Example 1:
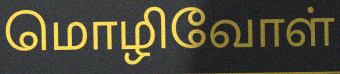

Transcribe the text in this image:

மொழிவோள்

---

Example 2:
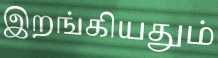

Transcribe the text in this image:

இறங்கியதும்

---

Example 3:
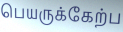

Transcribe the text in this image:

பெயருக்கேற்ப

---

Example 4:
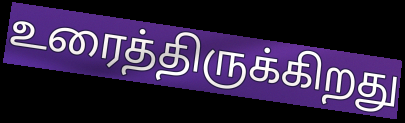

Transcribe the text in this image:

உரைத்திருக்கிறது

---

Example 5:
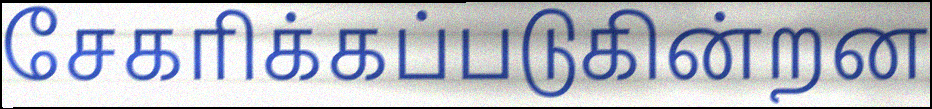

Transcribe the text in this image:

சேகரிக்கப்படுகின்றன